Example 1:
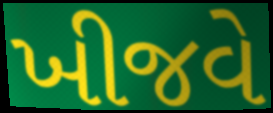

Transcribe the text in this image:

ખીજવે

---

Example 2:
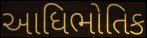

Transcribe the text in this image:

આધિભોતિક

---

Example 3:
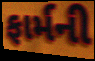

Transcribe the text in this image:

ફાર્મની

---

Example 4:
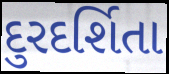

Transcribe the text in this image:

દુરદર્શિતા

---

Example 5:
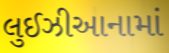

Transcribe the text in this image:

લુઈઝીઆનામાં